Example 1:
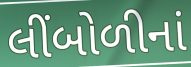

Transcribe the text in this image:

લીંબોળીનાં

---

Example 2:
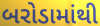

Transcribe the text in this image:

બરોડામાંથી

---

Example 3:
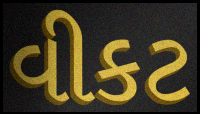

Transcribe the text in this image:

વીકટ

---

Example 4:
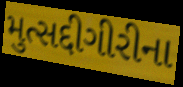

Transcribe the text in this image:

મુત્સદ્દીગીરીના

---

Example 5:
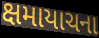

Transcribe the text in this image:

ક્ષમાયાચના